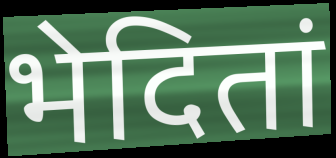
भेदितां